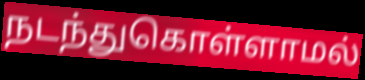
நடந்துகொள்ளாமல்